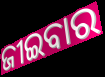
ଜୀଇବାର